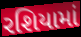
રશિયામાં